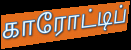
காரோட்டிப்